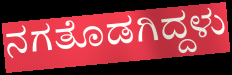
ನಗತೊಡಗಿದ್ದಳು